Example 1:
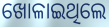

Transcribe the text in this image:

ଖୋଳାଇଥିଲେ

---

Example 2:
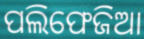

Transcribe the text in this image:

ପଲିଫେଜିଆ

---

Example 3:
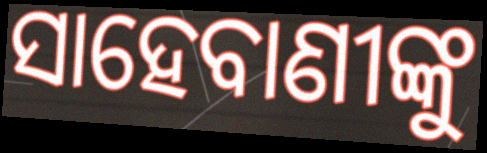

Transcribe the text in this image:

ସାହେବାଣୀଙ୍କୁ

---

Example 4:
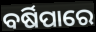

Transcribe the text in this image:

ବର୍ଷିପାରେ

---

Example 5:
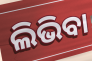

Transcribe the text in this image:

ଲିଭିବା